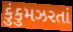
કુંકુમઝરતાં